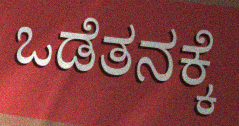
ಒಡೆತನಕ್ಕೆ